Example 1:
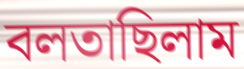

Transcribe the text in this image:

বলতাছিলাম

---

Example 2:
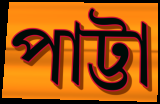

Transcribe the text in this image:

পাট্টা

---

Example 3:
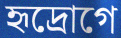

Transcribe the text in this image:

হৃদ্রোগে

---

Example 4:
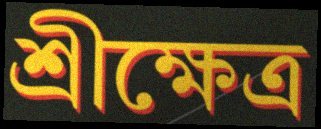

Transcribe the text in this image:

শ্রীক্ষেত্র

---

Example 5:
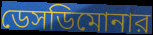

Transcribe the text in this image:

ডেসডিমোনার